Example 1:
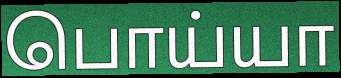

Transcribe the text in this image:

பொய்யா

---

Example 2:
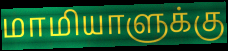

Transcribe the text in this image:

மாமியாளுக்கு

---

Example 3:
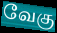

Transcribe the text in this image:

வேகு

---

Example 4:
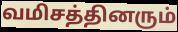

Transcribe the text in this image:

வமிசத்தினரும்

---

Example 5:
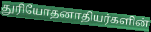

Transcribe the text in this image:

துரியோதனாதியர்களின்